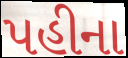
પહીના